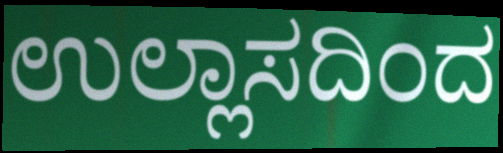
ಉಲ್ಲಾಸದಿಂದ